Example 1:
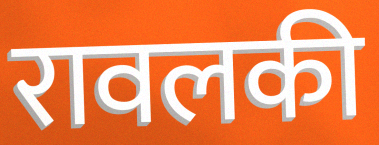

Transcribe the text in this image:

रावलकी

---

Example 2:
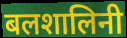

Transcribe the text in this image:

बलशालिनी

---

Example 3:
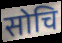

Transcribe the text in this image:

सोचि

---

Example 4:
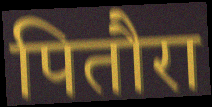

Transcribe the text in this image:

पितौरा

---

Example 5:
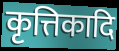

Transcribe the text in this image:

कृत्तिकादि